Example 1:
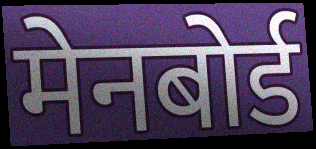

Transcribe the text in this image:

मेनबोर्ड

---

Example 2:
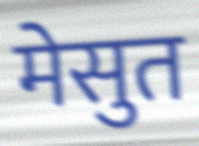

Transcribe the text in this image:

मेसुत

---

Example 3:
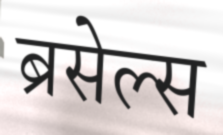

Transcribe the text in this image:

ब्रसेल्स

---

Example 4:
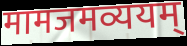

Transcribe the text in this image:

मामजमव्ययम्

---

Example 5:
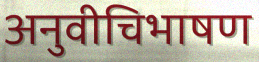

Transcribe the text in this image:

अनुवीचिभाषण